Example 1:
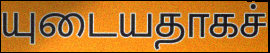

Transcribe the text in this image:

யுடையதாகச்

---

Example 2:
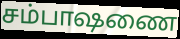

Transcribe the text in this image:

சம்பாஷணை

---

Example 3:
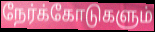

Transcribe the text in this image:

நேர்க்கோடுகளும்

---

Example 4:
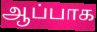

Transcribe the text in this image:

ஆப்பாக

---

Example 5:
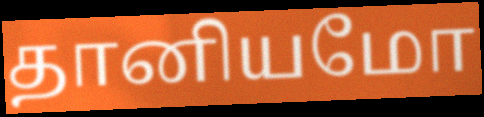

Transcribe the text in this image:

தானியமோ